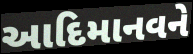
આદિમાનવને